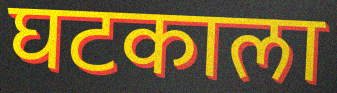
घटकाला